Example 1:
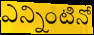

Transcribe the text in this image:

ఎన్నింటినో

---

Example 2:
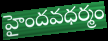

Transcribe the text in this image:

హైందవధర్మం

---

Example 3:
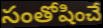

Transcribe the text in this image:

సంతోషించే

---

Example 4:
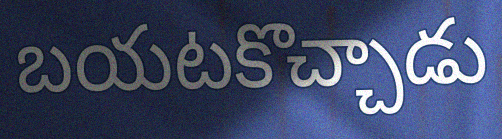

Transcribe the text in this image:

బయటకొచ్చాడు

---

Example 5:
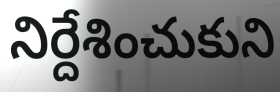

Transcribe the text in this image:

నిర్దేశించుకుని